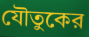
যৌতুকের